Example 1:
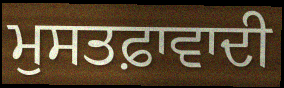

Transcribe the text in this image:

ਮੁਸਤਫ਼ਾਵਾਦੀ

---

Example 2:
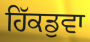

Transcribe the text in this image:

ਹਿੱਕਡੁਵਾ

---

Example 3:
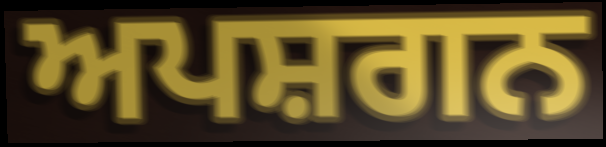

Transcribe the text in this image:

ਅਪਸ਼ਗਨ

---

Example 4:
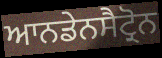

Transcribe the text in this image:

ਆਨਡੇਨਸੈਟ੍ਰੋਨ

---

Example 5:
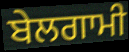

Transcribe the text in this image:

ਬੇਲਗਾਮੀ